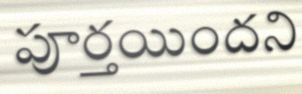
పూర్తయిందని